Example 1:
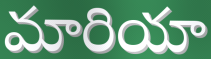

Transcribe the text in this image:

మారియా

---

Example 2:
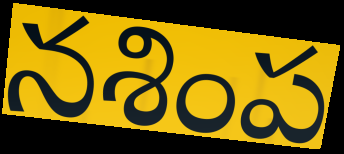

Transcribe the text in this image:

నశింప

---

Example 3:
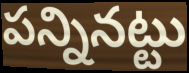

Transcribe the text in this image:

పన్నినట్టు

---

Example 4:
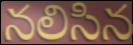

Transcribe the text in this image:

నలిసిన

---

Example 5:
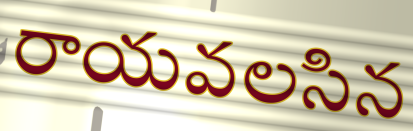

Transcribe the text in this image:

రాయవలసిన